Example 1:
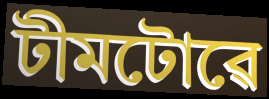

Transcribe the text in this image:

টীমটোৱে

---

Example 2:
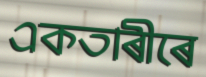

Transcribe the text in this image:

একতাৰীৰে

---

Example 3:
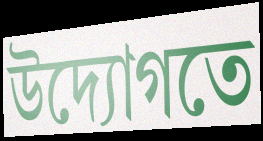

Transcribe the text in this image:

উদ্যোগতে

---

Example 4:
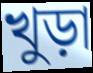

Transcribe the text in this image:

খুড়া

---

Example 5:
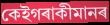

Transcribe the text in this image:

কেইগৰাকীমানৰ